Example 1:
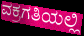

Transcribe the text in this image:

ವಕ್ರಗತಿಯಲ್ಲಿ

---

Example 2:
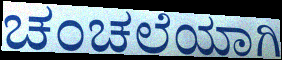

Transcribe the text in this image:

ಚಂಚಲೆಯಾಗಿ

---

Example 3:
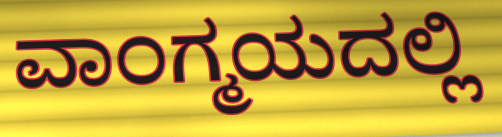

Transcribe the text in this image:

ವಾಂಗ್ಮಯದಲ್ಲಿ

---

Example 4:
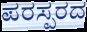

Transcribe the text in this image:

ಪರಸ್ಪರದ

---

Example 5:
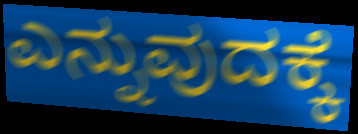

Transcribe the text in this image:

ಎನ್ನುವುದಕ್ಕೆ